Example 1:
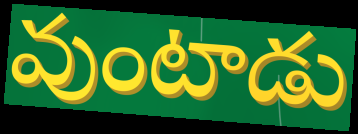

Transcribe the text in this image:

వుంటాడు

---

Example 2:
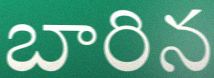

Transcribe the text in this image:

బారిన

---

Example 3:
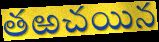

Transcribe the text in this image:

తఱచయిన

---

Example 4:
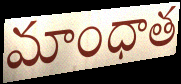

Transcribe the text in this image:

మాంధాత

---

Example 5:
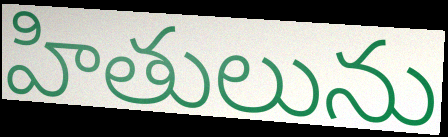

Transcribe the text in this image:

హితులును